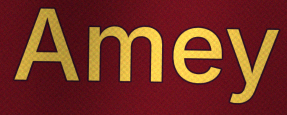
Amey